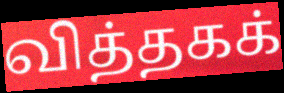
வித்தகக்